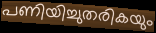
പണിയിച്ചുതരികയും